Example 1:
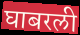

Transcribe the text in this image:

घाबरली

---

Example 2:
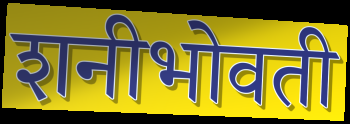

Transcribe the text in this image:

शनीभोवती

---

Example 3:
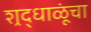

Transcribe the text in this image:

श्रद्धाळूंचा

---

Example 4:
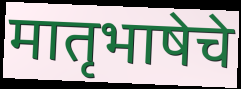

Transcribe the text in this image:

मातृभाषेचे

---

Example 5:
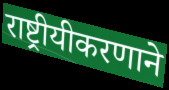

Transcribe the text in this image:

राष्ट्रीयीकरणाने